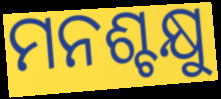
ମନଶ୍ଚକ୍ଷୁ